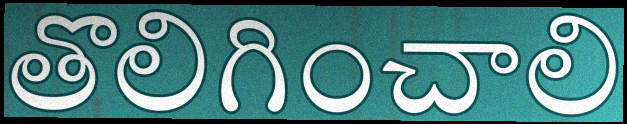
తొలిగించాలి